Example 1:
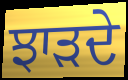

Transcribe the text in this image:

ਝਾੜਦੇ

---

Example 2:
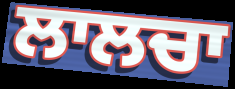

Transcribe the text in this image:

ਲਾਲਚਾ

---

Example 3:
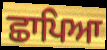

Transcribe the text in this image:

ਛਾਪਿਆ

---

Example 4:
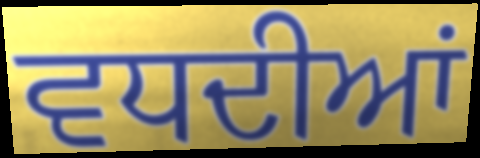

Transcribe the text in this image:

ਵਧਦੀਆਂ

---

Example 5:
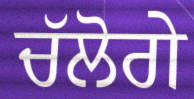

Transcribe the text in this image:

ਚੱਲੋਗੇ